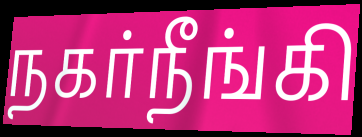
நகர்நீங்கி